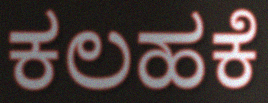
ಕಲಹಕೆ